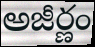
అజీర్ణం